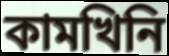
কামখিনি